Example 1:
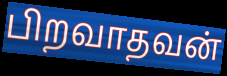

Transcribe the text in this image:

பிறவாதவன்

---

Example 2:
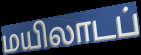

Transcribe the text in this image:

மயிலாடப்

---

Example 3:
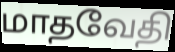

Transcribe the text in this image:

மாதவேதி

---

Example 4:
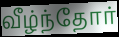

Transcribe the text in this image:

வீழ்ந்தோர்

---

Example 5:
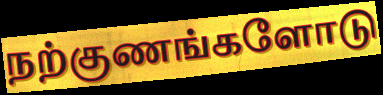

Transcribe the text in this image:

நற்குணங்களோடு